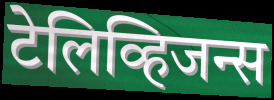
टेलिव्हिजन्स